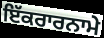
ਇੱਕਰਾਰਨਾਮੇ